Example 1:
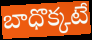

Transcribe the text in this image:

బాధొక్కటే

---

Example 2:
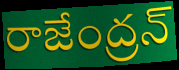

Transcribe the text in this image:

రాజేంద్రన్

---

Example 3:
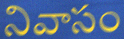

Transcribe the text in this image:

నివాసం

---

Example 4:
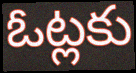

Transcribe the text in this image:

ఓట్లకు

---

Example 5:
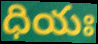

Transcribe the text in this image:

ధియః